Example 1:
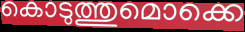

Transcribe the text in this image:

കൊടുത്തുമൊക്കെ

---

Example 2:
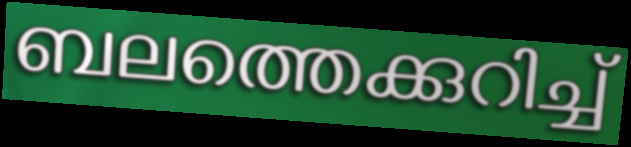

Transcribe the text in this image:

ബലത്തെക്കുറിച്ച്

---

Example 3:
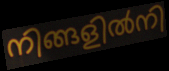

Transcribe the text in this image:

നിങ്ങളിൽനി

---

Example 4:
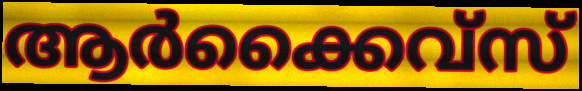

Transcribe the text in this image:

ആർക്കൈവ്സ്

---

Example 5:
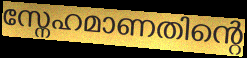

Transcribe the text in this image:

സ്നേഹമാണതിന്റെ